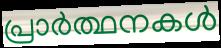
പ്രാർത്ഥനകൾ